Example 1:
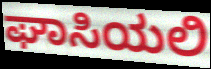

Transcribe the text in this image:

ಘಾಸಿಯಲಿ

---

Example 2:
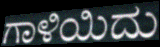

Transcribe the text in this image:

ಗಾಳಿಯಿದು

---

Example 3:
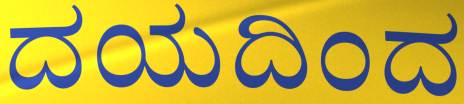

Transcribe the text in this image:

ದಯದಿಂದ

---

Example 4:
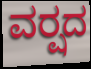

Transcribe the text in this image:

ವರ್‍ಷದ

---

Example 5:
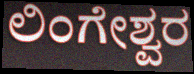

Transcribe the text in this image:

ಲಿಂಗೇಶ್ವರ